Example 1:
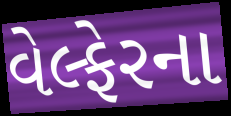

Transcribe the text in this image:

વેલ્ફેરના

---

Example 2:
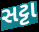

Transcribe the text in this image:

સટ્ટા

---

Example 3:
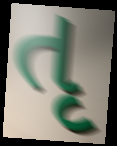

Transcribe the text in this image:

તૃ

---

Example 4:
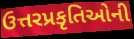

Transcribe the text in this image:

ઉત્તરપ્રકૃતિઓની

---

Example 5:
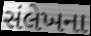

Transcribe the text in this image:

સંલેખના